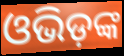
ଓଭିଡ଼ଙ୍କ